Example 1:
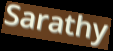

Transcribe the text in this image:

Sarathy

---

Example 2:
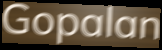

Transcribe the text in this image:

Gopalan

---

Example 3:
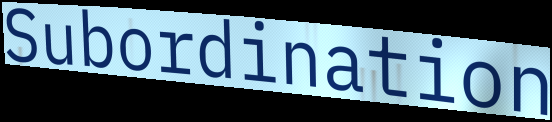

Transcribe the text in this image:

Subordination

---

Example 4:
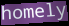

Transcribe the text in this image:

homely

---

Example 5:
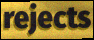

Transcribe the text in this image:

rejects